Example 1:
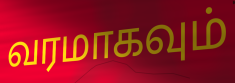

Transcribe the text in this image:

வரமாகவும்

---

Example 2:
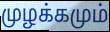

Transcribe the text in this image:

முழக்கமும்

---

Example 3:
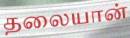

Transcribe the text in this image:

தலையான்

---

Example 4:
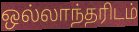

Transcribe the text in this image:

ஒல்லாந்தரிடம்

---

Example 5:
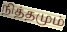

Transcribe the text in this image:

நித்தமும்